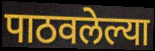
पाठवलेल्या